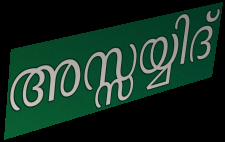
അസ്സയ്യിദ്